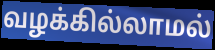
வழக்கில்லாமல்